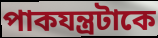
পাকযন্ত্রটাকে